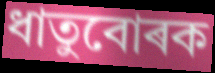
ধাতুবোৰক